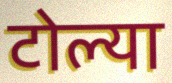
टोल्या